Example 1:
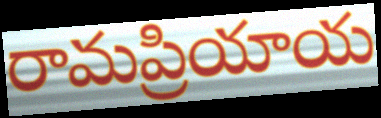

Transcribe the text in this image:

రామప్రియాయ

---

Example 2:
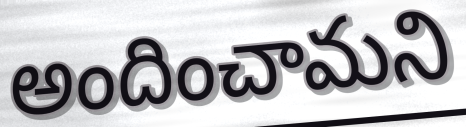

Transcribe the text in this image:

అందించామని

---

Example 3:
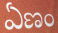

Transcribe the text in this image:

ఏణం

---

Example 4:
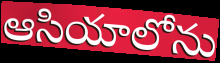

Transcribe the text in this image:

ఆసియాలోను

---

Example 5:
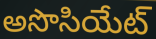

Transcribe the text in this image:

అసొసియేట్